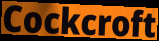
Cockcroft